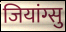
जियांग्सु